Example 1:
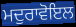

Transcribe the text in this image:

ਮਦੁਰਾਵੋਇਲ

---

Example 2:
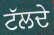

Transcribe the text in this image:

ਟੱਲਦੇ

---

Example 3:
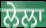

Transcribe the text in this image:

ਲੇਲਾ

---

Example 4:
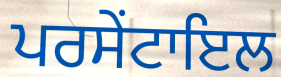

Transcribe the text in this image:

ਪਰਸੇਂਟਾਇਲ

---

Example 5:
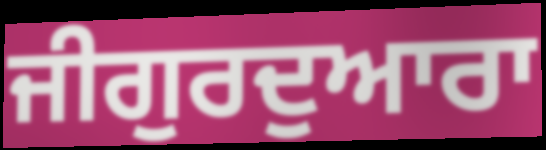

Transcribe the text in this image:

ਜੀਗੁਰਦੁਆਰਾ